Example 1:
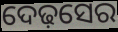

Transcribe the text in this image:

ଦେଢ଼ସେର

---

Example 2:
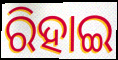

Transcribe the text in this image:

ରିହାଇ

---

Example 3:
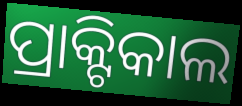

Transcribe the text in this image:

ପ୍ରାକ୍ଟିକାଲ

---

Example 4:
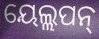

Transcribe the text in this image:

ୟେଲ୍ଲପନ୍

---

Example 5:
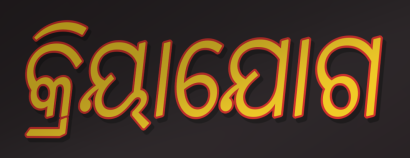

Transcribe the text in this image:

କ୍ରିୟାଯୋଗ